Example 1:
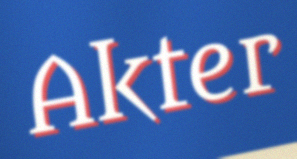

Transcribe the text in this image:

Akter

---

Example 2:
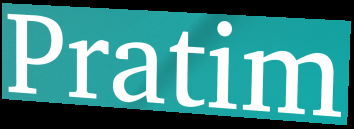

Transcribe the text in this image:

Pratim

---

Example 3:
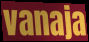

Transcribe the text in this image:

vanaja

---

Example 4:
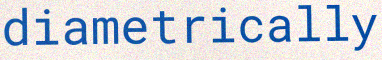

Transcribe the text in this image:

diametrically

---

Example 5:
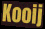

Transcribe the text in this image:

Kooij